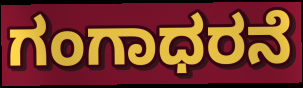
ಗಂಗಾಧರನೆ